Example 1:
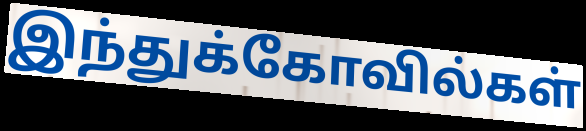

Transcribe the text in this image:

இந்துக்கோவில்கள்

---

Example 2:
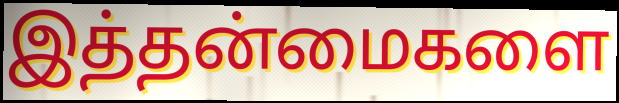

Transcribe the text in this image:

இத்தன்மைகளை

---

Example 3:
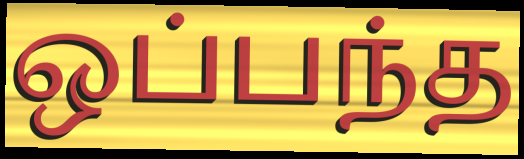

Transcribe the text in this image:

ஒப்பந்த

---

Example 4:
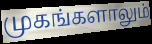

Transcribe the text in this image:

முகங்களாலும்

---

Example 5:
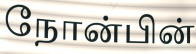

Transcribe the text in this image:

நோன்பின்